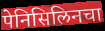
पेनिसिलिनचा